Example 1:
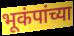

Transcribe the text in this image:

भूकंपांच्या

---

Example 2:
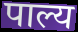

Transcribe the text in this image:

पाल्य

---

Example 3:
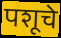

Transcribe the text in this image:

पशूचे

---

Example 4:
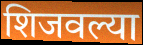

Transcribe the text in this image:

शिजवल्या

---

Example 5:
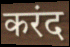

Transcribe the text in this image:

करंद